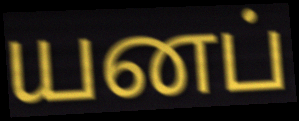
யனப்